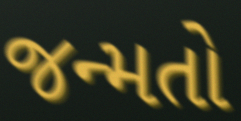
જન્મતો